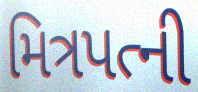
મિત્રપત્ની